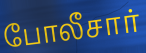
போலீசார்